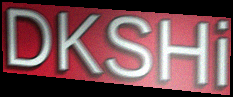
DKSHi